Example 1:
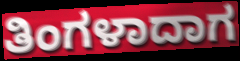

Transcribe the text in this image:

ತಿಂಗಳಾದಾಗ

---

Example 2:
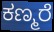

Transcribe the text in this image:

ಕಣ್ಮರೆ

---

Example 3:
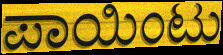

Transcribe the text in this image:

ಪಾಯಿಂಟು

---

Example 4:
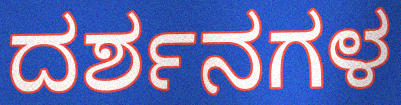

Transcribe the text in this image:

ದರ್ಶನಗಳ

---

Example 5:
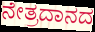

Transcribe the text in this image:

ನೇತ್ರದಾನದ